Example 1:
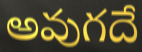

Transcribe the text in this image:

అవుగదే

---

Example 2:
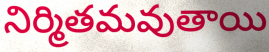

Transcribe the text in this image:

నిర్మితమవుతాయి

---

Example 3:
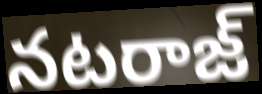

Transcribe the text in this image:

నటరాజ్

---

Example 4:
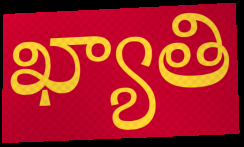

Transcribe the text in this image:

ఖ్యాతి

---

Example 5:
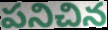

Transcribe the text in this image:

పనిచిన